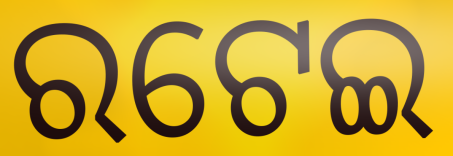
ରଟେଇ